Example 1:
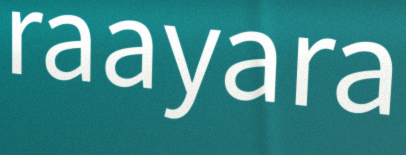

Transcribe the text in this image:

raayara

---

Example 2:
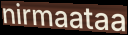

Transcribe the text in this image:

nirmaataa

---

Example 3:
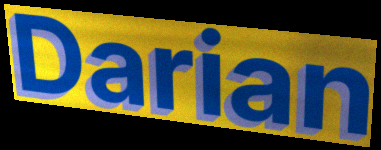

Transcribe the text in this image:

Darian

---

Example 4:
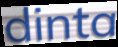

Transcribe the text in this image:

dinta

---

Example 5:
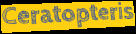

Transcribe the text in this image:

Ceratopteris